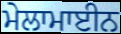
ਮੇਲਾਮਾਈਨ